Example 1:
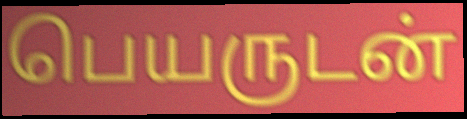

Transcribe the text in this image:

பெயருடன்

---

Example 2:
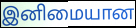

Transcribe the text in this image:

இனிமையான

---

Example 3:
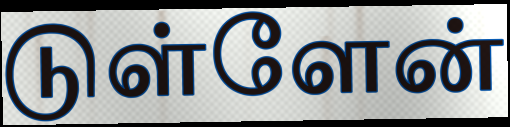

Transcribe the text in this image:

டுள்ளேன்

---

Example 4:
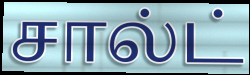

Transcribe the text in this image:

சால்ட்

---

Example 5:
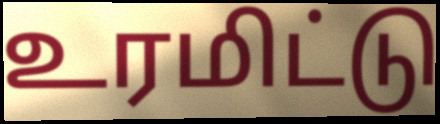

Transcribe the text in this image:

உரமிட்டு